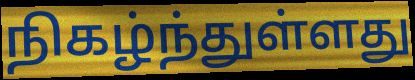
நிகழ்ந்துள்ளது